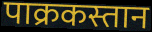
पाक्रकस्तान